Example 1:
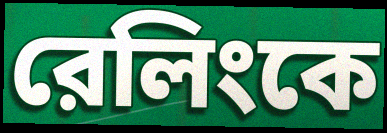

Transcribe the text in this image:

রেলিংকে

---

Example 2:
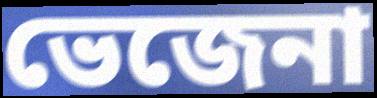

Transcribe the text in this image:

ভেজেনা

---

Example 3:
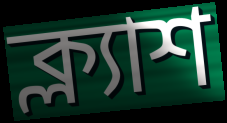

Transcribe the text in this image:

ক্ল্যাশ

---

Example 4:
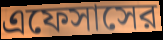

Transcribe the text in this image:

এফেসাসের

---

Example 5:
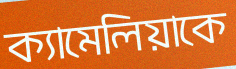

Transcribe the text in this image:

ক্যামেলিয়াকে